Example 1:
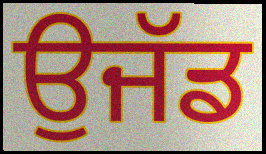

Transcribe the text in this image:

ਉਜੱਡ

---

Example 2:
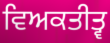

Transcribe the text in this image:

ਵਿਅਕਤੀਤ੍ਵ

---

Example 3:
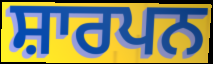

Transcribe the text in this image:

ਸ਼ਾਰਪਨ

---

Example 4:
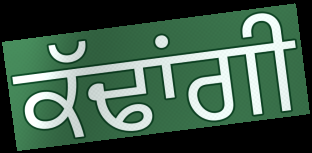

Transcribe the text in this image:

ਕੱਢਾਂਗੀ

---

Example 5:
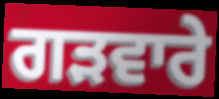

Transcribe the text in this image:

ਗੜਵਾਰੇ